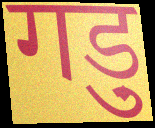
गड़ु